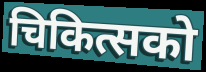
चिकित्सको